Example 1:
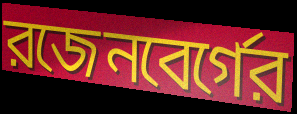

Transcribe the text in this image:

রজেনবের্গের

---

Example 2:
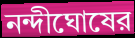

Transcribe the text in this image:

নন্দীঘোষের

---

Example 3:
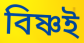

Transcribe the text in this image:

বিষ্ণই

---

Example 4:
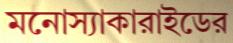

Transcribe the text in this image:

মনোস্যাকারাইডের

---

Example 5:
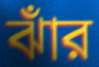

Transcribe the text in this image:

ঝাঁর